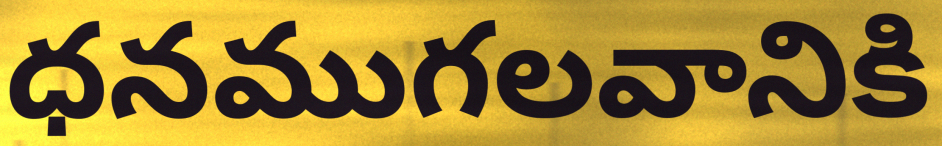
ధనముగలవానికి